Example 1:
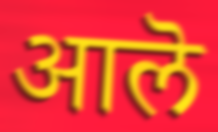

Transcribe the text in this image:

आलॆ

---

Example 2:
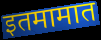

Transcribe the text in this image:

इतमामात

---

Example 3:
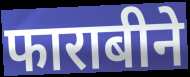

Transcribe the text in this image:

फाराबीने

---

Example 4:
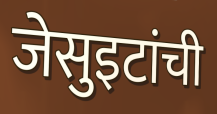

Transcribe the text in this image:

जेसुइटांची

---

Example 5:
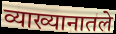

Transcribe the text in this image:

व्याख्यानातले